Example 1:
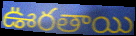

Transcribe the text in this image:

ఊరతాయి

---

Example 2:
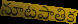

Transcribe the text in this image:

నూటపాతిక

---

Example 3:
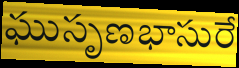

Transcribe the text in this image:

ఘుసృణభాసురే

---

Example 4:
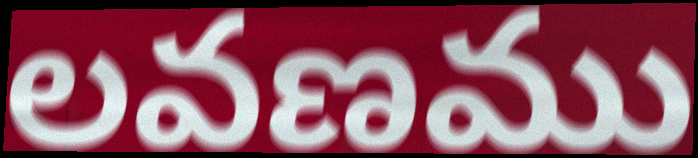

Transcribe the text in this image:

లవణము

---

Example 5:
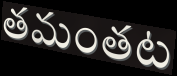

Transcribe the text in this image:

తమంతట